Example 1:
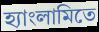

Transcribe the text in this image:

হ্যাংলামিতে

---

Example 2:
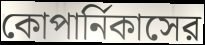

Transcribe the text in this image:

কোপার্নিকাসের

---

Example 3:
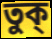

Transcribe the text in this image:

তুক্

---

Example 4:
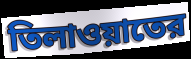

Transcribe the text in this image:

তিলাওয়াতের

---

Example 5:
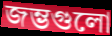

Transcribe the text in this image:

জম্ভগুলো